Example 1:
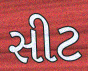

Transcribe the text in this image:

સીટ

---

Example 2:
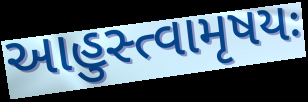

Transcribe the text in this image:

આહુસ્ત્વામૃષયઃ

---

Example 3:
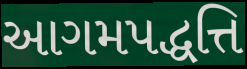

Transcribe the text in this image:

આગમપદ્ધત્તિ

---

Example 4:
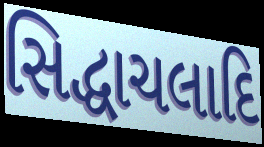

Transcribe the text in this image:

સિદ્ધાચલાદિ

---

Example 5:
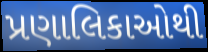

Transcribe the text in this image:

પ્રણાલિકાઓથી